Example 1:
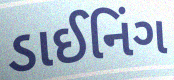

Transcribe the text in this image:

ડાઈનિંગ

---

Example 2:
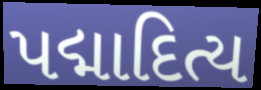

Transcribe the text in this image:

પદ્માદિત્ય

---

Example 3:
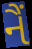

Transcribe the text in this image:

નૈં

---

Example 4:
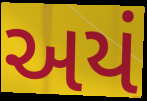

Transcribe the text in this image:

અયં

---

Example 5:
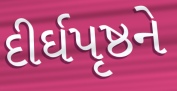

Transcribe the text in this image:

દીર્ઘપૃષ્ઠને